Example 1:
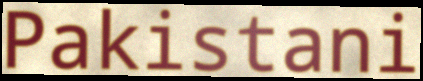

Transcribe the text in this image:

Pakistani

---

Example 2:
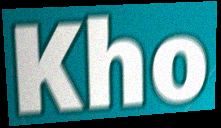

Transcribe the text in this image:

Kho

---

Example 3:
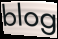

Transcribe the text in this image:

blog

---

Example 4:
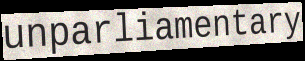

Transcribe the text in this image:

unparliamentary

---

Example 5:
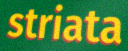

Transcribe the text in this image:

striata